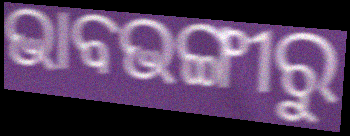
ଭାବଭଙ୍ଗୀରୁ